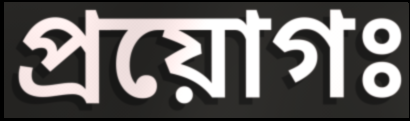
প্রয়োগঃ